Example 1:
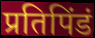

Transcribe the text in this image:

प्रतिपिंडं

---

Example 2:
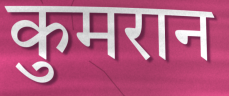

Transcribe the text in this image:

कुमरान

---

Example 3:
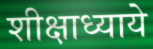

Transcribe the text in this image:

शीक्षाध्याये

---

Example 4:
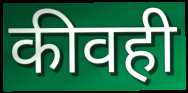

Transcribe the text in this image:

कीवही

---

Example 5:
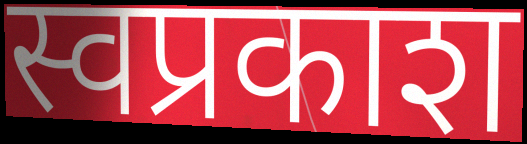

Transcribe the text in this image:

स्वप्रकाश